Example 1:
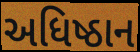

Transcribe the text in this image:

અધિષ્ઠાન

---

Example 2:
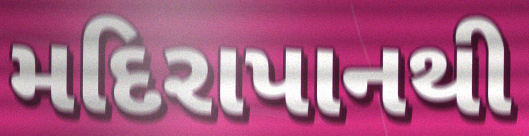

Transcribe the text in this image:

મદિરાપાનથી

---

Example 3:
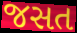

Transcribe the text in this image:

જસત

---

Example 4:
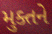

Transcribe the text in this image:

મુક્તને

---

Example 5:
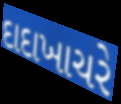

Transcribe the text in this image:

દાદાખાચરે